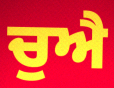
ਚੁਐ